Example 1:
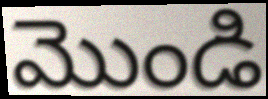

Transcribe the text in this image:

మొండి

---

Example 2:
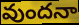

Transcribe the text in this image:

వుందనా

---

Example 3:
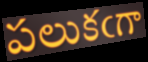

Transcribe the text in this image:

పలుకఁగా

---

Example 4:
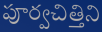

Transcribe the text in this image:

పూర్వచిత్తిని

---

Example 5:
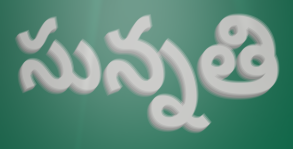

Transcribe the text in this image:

సున్నతి